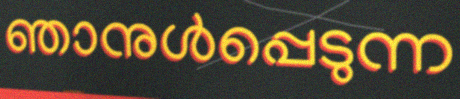
ഞാനുൾപ്പെടുന്ന